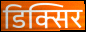
डिक्सिर